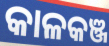
କାଳକଞ୍ଜ